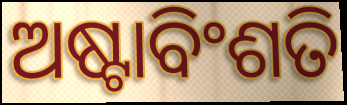
ଅଷ୍ଟାବିଂଶତି